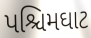
પશ્ચિમઘાટ